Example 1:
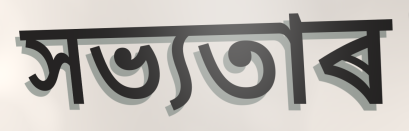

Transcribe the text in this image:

সভ্যতাৰ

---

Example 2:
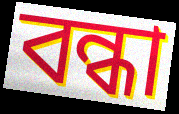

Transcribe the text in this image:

বন্ধা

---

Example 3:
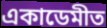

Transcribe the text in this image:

একাডেমীত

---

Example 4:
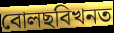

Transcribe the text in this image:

বোলছবিখনত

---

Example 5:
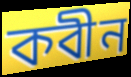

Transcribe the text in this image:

কবীন